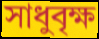
সাধুবৃক্ষ